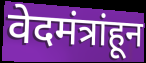
वेदमंत्रांहून